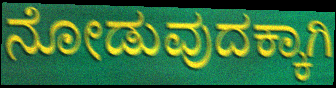
ನೋಡುವುದಕ್ಕಾಗಿ